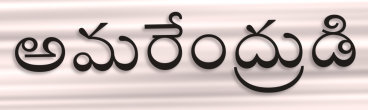
అమరేంద్రుడి